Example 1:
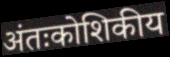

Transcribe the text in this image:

अंतःकोशिकीय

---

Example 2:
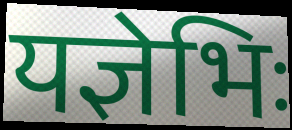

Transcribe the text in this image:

यज्ञेभिः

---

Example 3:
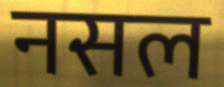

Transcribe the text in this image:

नसल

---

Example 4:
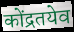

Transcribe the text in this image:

कोंद्रतयेव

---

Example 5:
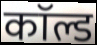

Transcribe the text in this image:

कॉल्ड